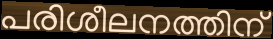
പരിശീലനത്തിന്